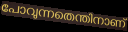
പോവുന്നതെന്തിനാണ്